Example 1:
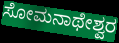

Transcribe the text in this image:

ಸೋಮನಾಥೇಶ್ವರ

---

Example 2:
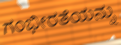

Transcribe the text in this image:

ಗಂಭೀರತೆಯನ್ನು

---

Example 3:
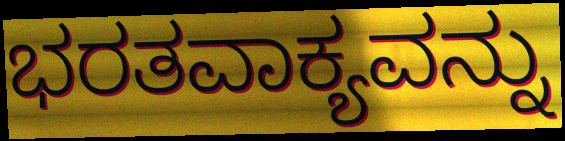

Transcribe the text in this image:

ಭರತವಾಕ್ಯವನ್ನು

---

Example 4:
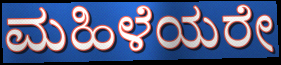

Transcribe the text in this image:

ಮಹಿಳೆಯರೇ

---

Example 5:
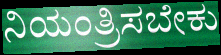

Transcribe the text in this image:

ನಿಯಂತ್ರಿಸಬೇಕು